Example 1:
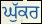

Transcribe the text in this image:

ਘੁੱਕਰ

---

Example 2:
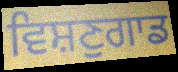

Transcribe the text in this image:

ਵਿਸ਼ਣੁਗਾਡ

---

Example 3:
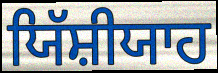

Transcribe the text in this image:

ਯਿੱਸ਼ੀਯਾਹ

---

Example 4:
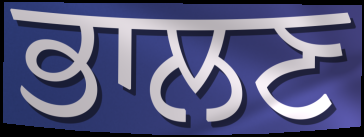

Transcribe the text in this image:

ਭਾਲਣ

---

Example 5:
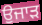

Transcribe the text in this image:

ਉੁਜਾੜ